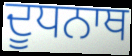
ਦੂਧਨਾਥ